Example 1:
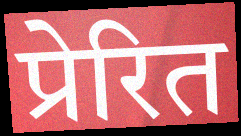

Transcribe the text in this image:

प्रेरित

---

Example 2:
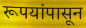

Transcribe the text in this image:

रूपयांपासून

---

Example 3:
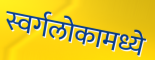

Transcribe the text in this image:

स्वर्गलोकामध्ये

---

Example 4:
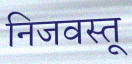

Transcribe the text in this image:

निजवस्तू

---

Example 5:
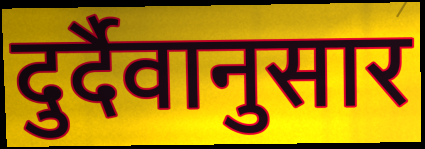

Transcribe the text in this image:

दुर्दैवानुसार